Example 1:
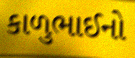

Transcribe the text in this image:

કાળુભાઈનો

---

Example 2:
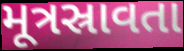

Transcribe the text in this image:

મૂત્રસ્રાવતા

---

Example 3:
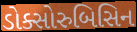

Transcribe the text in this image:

ડોક્સોરુબિસિન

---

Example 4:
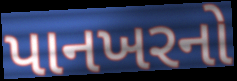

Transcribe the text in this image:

પાનખરનો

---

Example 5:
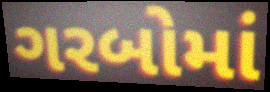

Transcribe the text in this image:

ગરબોમાં